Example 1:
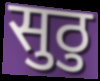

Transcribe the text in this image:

सुठु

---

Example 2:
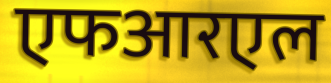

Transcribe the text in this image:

एफआरएल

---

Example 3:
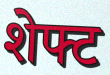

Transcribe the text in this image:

शेफ्ट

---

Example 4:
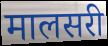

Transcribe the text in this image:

मालसरी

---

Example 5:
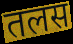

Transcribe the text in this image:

तलस